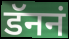
डॅननं